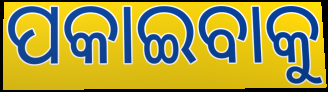
ପକାଇବାକୁ